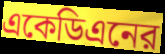
একেডিএনের